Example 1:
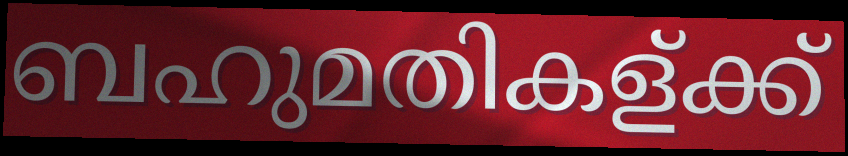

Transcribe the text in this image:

ബഹുമതികള്ക്ക്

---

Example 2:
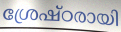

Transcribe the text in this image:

ശ്രേഷ്ഠരായി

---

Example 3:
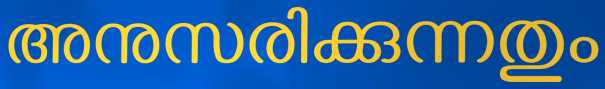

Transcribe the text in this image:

അനുസരിക്കുന്നതും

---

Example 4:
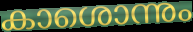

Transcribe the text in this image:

കാശൊന്നും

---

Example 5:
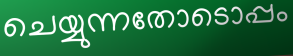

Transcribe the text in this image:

ചെയ്യുന്നതോടൊപ്പം